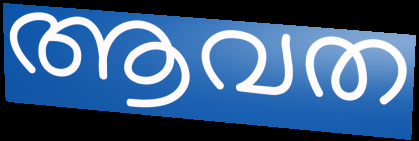
ആവത